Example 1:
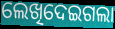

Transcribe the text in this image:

ଲେଖିଦେଇଗଲା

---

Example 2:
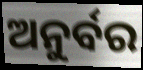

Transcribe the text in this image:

ଅନୁର୍ବର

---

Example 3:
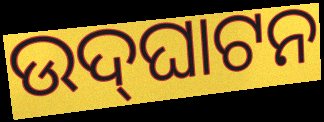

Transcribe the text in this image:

ଉଦ୍‌ଘାଟନ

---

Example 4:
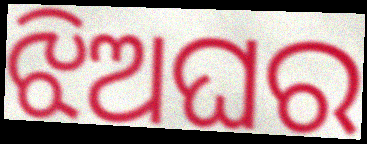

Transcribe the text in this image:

ଝିଅଘର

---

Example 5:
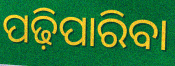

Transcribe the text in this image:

ପଢ଼ିପାରିବା